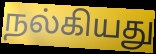
நல்கியது